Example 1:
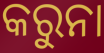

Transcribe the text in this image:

କରୁନା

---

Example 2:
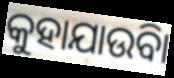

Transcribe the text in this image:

କୁହାଯାଉିବା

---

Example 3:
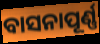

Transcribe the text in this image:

ବାସନାପୂର୍ଣ୍ଣ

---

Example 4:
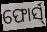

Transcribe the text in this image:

ଫୋର୍ସ୍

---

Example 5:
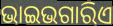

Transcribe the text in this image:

ଭାଇଭଗାରିଏ